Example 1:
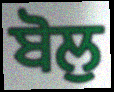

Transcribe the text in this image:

ਬੋਲੁ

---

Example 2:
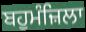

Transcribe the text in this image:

ਬਹੁਮੰਜ਼ਿਲਾ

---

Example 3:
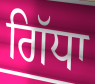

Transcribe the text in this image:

ਗਿੱਧਾ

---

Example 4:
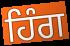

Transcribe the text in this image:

ਹਿੰਗ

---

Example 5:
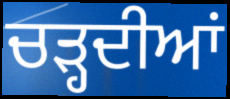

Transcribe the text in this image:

ਚੜ੍ਹਦੀਆਂ